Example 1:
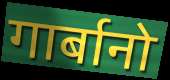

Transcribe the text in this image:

गार्बानो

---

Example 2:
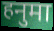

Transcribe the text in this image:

हनुमा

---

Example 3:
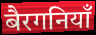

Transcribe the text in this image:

बैरगनियाँ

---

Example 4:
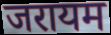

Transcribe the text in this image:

जरायम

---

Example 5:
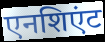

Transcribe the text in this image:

एनशिएंट